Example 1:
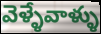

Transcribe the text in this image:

వెళ్ళేవాళ్ళు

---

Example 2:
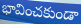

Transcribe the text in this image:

భావించకుండా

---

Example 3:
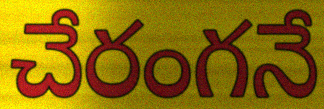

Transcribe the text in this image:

చేరంగనే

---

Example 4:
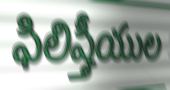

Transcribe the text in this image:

ఫిలిష్తీయుల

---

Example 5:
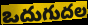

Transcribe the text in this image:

ఒదుగుదల